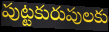
పుట్టకురుపులకు